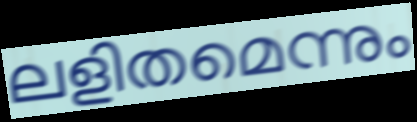
ലളിതമെന്നും